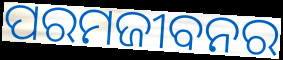
ପରମଜୀବନର